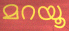
മറയൂ